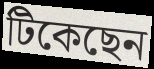
টিকেছেন